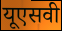
यूएसवी